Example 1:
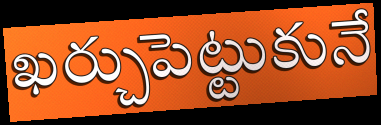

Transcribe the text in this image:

ఖర్చుపెట్టుకునే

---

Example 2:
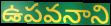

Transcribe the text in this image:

ఉపవనాని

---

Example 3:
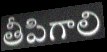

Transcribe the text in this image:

తీపిగాలి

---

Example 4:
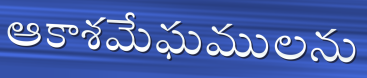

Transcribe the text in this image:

ఆకాశమేఘములను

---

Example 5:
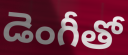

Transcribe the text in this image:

డెంగీతో